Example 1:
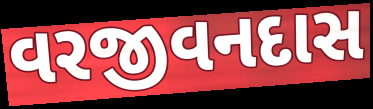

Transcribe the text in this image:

વરજીવનદાસ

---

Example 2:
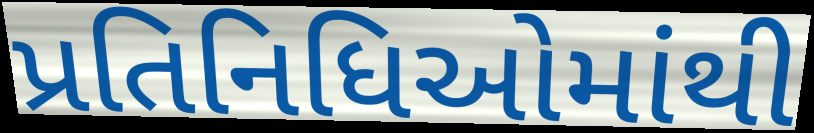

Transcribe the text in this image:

પ્રતિનિધિઓમાંથી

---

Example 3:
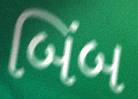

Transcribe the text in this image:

બિંબ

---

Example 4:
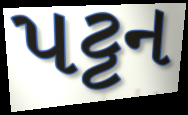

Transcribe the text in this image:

પટ્ટન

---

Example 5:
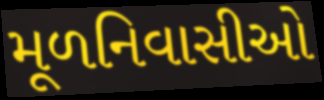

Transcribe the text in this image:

મૂળનિવાસીઓ